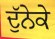
ਦੁੱਨੇਕੇ